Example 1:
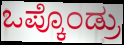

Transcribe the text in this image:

ಒಪ್ಕೊಂಡ್ರು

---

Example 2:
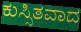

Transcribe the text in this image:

ಕುಸ್ಸಿತವಾದ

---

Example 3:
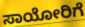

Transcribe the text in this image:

ಸಾಯೋರಿಗೆ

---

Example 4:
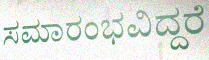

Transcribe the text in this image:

ಸಮಾರಂಭವಿದ್ದರೆ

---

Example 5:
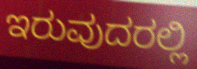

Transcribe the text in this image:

ಇರುವುದರಲ್ಲಿ